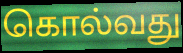
கொல்வது